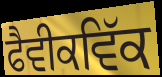
ਫੈਵੀਕਵਿੱਕ